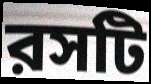
রসটি